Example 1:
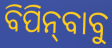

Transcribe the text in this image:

ବିପିନ୍‌ବାବୁ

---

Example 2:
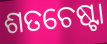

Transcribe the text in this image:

ଶତଚେଷ୍ଟା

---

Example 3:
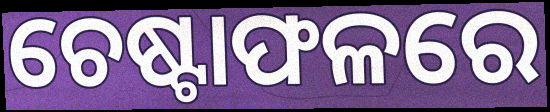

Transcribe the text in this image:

ଚେଷ୍ଟାଫଳରେ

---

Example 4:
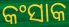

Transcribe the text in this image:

କଂସାକ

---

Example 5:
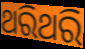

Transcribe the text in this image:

ଥରିଥରି